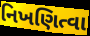
નિખણિત્વા